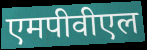
एमपीवीएल